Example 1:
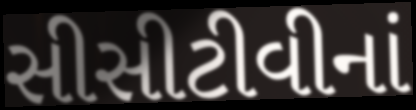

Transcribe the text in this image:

સીસીટીવીનાં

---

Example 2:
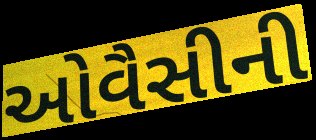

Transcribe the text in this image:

ઓવૈસીની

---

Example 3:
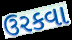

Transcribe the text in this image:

ઉરકવા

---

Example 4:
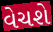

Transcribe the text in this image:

વેચશે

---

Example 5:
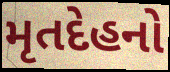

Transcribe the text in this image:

મૃતદેહનો